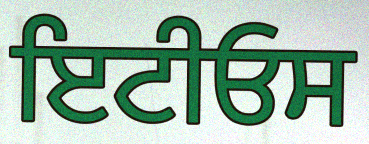
ਇਟੀਓਸ